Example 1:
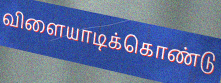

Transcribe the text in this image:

விளையாடிக்கொண்டு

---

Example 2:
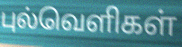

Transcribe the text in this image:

புல்வெளிகள்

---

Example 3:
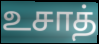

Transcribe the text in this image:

உசாத்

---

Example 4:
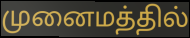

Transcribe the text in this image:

முனைமத்தில்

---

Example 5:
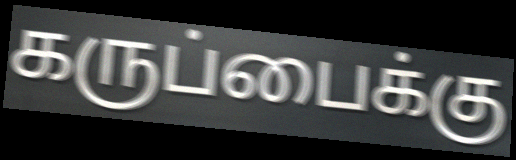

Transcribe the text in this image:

கருப்பைக்கு